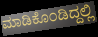
ಮಾಡಿಕೊಂಡಿದ್ದಲ್ಲಿ